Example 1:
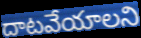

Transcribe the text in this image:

దాటవేయాలని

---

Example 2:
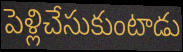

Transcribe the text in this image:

పెళ్లిచేసుకుంటాడు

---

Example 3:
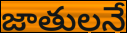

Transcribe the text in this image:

జాతులనే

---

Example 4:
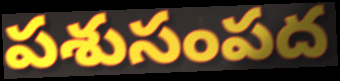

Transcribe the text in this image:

పశుసంపద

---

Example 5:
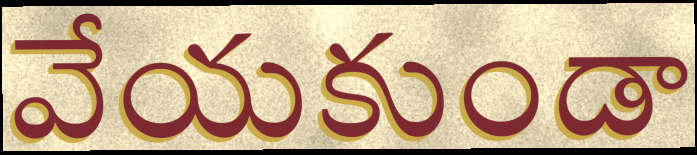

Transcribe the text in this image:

వేయకుండా